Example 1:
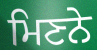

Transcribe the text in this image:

ਮਿਣਨੇ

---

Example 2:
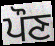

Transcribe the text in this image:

ਪੌਣ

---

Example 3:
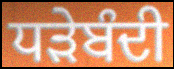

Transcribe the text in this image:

ਧੜੇਬੰਦੀ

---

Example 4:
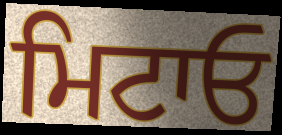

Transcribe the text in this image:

ਮਿਟਾਓ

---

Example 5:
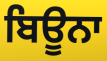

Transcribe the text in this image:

ਬਿਊਨਾ